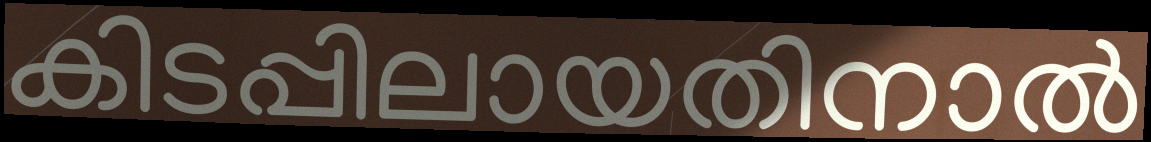
കിടപ്പിലായതിനാൽ